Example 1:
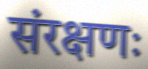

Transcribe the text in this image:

संरक्षणः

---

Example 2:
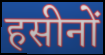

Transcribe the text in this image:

हसीनों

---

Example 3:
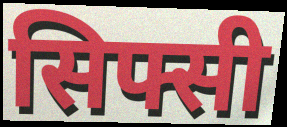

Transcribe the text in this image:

सिफ्सी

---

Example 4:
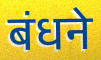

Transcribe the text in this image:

बंधने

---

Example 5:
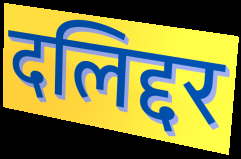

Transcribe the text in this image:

दलिद्दर